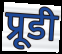
प्रूडी